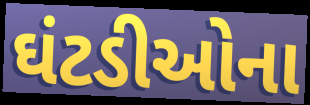
ઘંટડીઓના